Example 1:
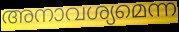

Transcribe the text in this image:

അനാവശ്യമെന്ന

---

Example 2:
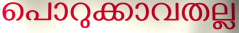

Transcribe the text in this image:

പൊറുക്കാവതല്ല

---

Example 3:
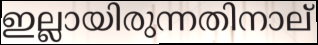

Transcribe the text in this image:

ഇല്ലായിരുന്നതിനാല്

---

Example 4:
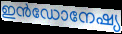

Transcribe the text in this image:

ഇൻഡോനേഷ്യ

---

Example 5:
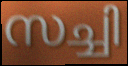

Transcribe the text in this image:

സച്ചി